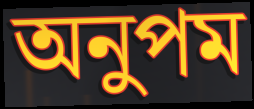
অনুপম